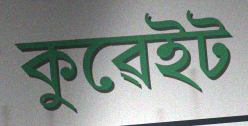
কুৱেইট